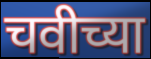
चवीच्या